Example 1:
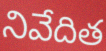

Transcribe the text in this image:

నివేదిత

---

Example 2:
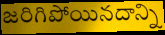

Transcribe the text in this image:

జరిగిపోయినదాన్ని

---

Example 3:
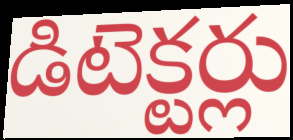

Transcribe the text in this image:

డిటెక్టర్లు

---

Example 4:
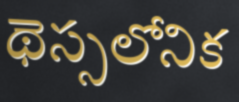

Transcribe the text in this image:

థెస్సలోనిక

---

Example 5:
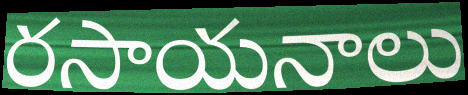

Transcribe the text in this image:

రసాయనాలు